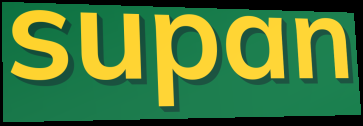
supan